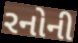
રનોની